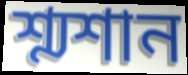
শ্মশান